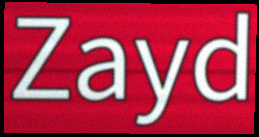
Zayd